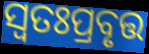
ସ୍ବତଃପ୍ରବୃତ୍ତ